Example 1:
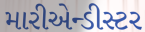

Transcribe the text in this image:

મારીએન્ડીસ્ટર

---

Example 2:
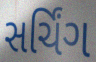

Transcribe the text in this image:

સર્ચિંગ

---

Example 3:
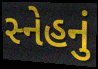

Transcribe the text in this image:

સ્નેહનું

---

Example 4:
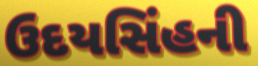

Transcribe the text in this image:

ઉદયસિંહની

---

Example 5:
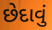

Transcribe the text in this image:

છેદાવું